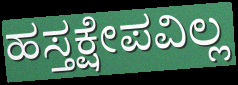
ಹಸ್ತಕ್ಷೇಪವಿಲ್ಲ